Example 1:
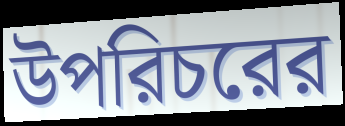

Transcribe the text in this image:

উপরিচরের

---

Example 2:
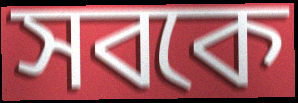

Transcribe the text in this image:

সবকে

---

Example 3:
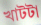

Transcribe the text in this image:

খাটটা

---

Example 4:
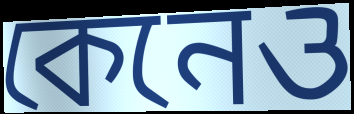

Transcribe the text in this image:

কেনেও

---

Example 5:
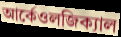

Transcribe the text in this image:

আর্কেওলজিক্যাল